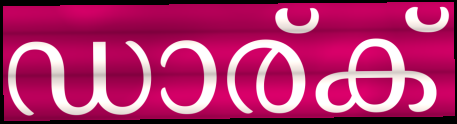
ഡാര്ക്